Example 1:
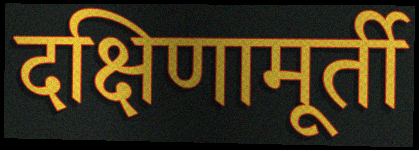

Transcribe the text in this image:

दक्षिणामूर्ती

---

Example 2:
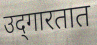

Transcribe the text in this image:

उद्‌गारतात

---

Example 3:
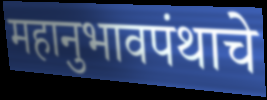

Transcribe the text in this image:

महानुभावपंथाचे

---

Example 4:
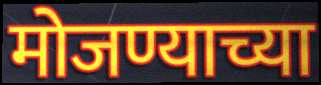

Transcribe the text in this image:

मोजण्याच्या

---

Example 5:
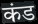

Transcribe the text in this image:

कंड